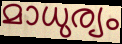
മാധുര്യം